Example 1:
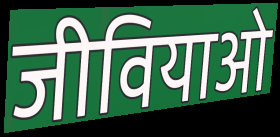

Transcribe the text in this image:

जीवियाओ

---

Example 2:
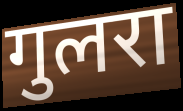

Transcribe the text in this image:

गुलरा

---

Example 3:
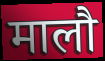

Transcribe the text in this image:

मालौ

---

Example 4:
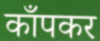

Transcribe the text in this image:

काँपकर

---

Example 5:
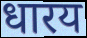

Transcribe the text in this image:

धारय